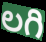
లగి